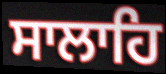
ਸਾਲਾਹਿ